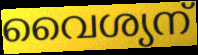
വൈശ്യന്